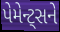
પેમેન્ટ્સને